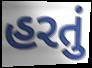
હરતું